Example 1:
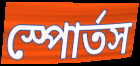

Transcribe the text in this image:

স্পোর্তস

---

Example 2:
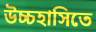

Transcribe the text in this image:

উচ্চহাসিতে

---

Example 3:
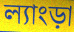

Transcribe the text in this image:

ল্যাংড়া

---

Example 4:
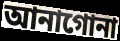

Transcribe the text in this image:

আনাগোনা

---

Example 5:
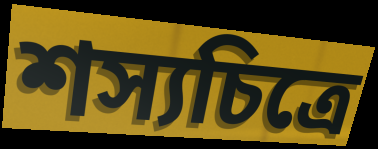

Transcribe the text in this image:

শস্যচিত্রে